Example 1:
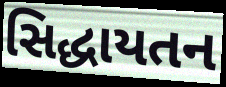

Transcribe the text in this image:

સિદ્ધાયતન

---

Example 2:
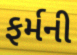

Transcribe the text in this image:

ફર્મની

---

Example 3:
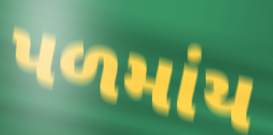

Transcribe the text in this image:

પળમાંય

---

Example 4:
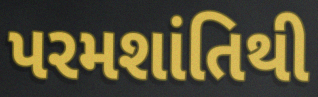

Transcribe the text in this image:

પરમશાંતિથી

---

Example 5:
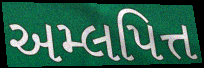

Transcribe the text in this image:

અમ્લપિત્ત